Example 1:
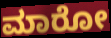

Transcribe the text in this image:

ಮಾರೋ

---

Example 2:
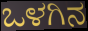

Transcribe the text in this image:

ಒಳಗಿನ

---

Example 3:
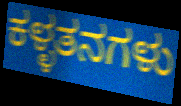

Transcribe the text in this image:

ಕಳ್ಳತನಗಳು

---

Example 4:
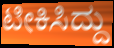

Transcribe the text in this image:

ಟೀಕಿಸಿದ್ದು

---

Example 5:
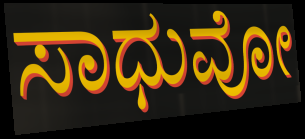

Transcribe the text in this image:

ಸಾಧುವೋ